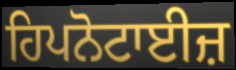
ਹਿਪਨੋਟਾਈਜ਼